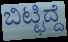
ಬಿಟ್ಟಿದ್ದೆ